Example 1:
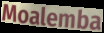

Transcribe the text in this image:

Moalemba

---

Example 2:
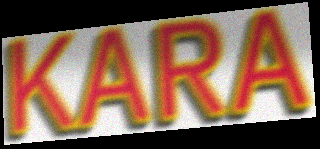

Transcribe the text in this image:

KARA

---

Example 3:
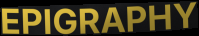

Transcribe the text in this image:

EPIGRAPHY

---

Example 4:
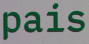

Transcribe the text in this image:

pais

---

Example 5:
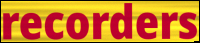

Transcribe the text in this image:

recorders